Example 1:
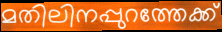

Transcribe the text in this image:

മതിലിനപ്പുറത്തേക്ക്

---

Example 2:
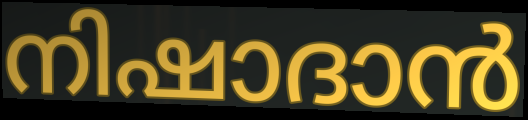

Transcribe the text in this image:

നിഷാദാൻ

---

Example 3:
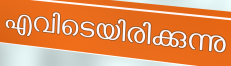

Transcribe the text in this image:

എവിടെയിരിക്കുന്നു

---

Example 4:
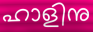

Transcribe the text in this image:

ഹാളിനു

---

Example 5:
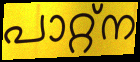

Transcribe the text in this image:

പാറ്റ്ന